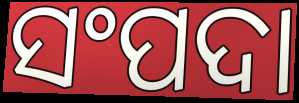
ସଂପଦା